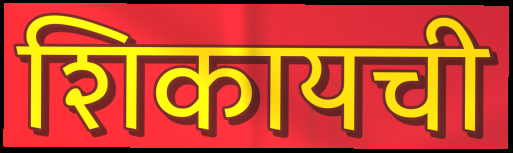
शिकायची